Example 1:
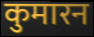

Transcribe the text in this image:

कुमारन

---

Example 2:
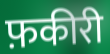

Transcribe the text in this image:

फ़कीरी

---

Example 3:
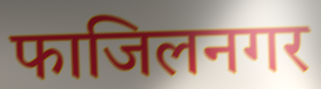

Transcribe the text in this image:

फाजिलनगर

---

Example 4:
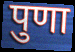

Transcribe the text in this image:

पुणा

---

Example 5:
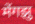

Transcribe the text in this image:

मेंगझु